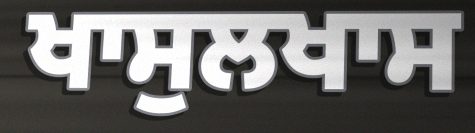
ਖਾਸੁਲਖਾਸ